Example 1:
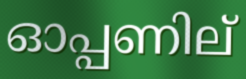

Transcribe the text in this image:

ഓപ്പണില്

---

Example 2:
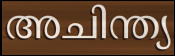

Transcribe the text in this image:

അചിന്ത്യ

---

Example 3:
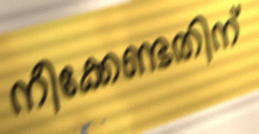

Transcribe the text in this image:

നീക്കേണ്ടതിന്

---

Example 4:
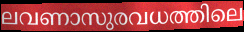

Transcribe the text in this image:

ലവണാസുരവധത്തിലെ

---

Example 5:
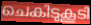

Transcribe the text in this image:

ചെകിടുകൂടി